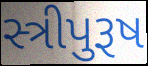
સ્ત્રીપુરૂષ